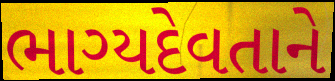
ભાગ્યદેવતાને